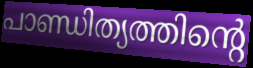
പാണ്ഡിത്യത്തിന്റെ